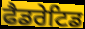
ਫੈਡਰੇਟਿਡ